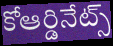
కోఆర్డినేట్స్